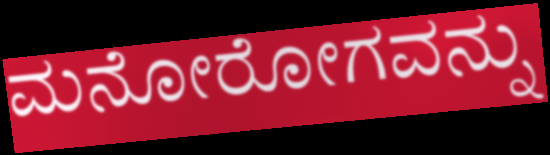
ಮನೋರೋಗವನ್ನು